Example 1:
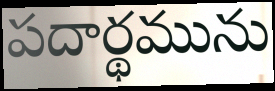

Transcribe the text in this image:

పదార్థమును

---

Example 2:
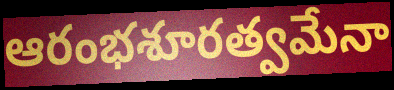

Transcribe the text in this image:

ఆరంభశూరత్వమేనా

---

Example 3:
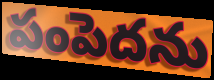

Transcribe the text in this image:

పంపెదను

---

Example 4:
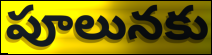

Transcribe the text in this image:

పూలునకు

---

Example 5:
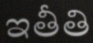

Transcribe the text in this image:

ఇతీతి